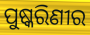
ପୁଷ୍କରିଣୀର